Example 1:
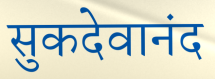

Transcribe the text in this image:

सुकदेवानंद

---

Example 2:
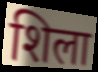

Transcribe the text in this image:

शिला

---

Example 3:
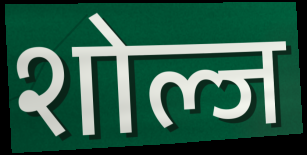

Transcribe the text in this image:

शोल्ज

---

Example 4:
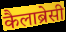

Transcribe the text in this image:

कैलाब्रेसी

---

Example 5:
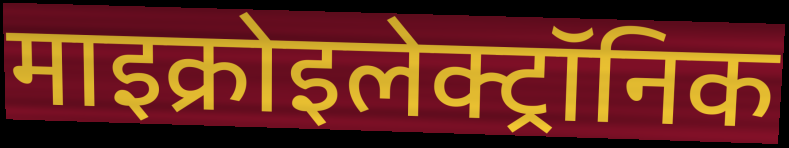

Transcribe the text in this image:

माइक्रोइलेक्ट्रॉनिक